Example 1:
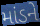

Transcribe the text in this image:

માંડને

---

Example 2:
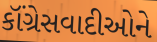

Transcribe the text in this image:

કૉંગ્રેસવાદીઓને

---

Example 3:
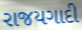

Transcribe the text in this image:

રાજયગાદી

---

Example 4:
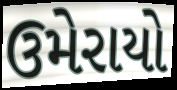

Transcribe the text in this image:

ઉમેરાયો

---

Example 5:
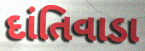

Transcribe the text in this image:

દાંતિવાડા